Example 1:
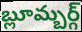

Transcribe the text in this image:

బ్లూమ్బర్గ్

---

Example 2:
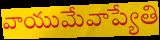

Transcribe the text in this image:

వాయుమేవాప్యేతి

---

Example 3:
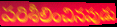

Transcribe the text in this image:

పరిశీలించినపుడు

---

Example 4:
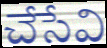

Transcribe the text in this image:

చేసేవి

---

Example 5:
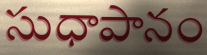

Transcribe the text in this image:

సుధాపానం